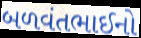
બળવંતભાઈનો